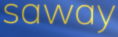
saway